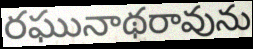
రఘునాథరావును